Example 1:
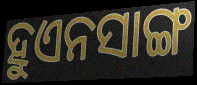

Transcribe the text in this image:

ହୁଏନସାଙ୍ଗ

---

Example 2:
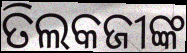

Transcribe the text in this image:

ତିଲକଜୀଙ୍କ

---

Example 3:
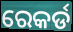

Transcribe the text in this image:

ରେକର୍ଡ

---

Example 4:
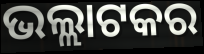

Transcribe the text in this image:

ଭଲ୍ଲାଟକର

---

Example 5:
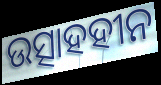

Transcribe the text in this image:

ଉତ୍ସାହହୀନ